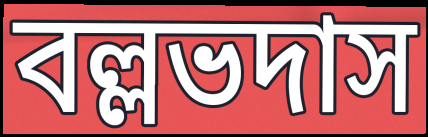
বল্লভদাস